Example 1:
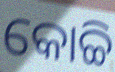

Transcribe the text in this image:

କୋଚ୍ଚି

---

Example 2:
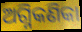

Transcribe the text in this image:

ଅଗ୍ନିକଣିକା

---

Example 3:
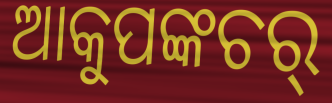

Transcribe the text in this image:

ଆକୁପଙ୍କଚର୍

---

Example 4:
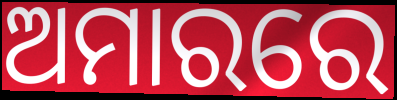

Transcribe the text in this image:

ଅମାରରେ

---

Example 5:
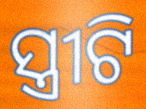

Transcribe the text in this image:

ସ୍ତ୍ରୀଟି